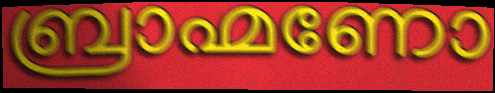
ബ്രാഹ്മണോ